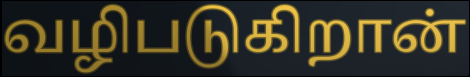
வழிபடுகிறான்